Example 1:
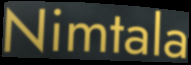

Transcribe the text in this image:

Nimtala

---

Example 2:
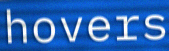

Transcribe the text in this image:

hovers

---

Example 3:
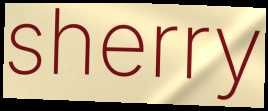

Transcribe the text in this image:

sherry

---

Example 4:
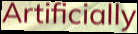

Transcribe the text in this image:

Artificially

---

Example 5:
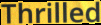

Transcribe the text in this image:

Thrilled